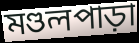
মণ্ডলপাড়া